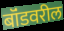
बॉंडवरील